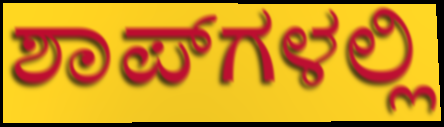
ಶಾಪ್‌ಗಳಲ್ಲಿ